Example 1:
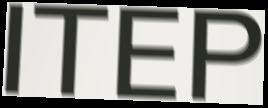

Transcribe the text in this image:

ITEP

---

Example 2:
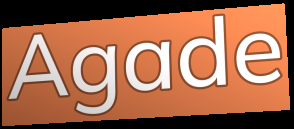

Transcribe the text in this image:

Agade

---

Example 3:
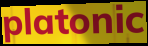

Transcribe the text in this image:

platonic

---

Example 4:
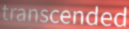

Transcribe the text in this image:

transcended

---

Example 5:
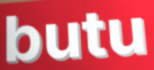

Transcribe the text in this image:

butu